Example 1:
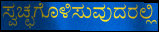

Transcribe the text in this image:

ಸ್ವಚ್ಛಗೊಳಿಸುವುದರಲ್ಲಿ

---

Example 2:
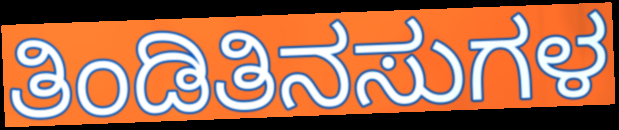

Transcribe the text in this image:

ತಿಂಡಿತಿನಸುಗಳ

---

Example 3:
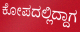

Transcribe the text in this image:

ಕೋಪದಲ್ಲಿದ್ದಾಗ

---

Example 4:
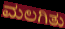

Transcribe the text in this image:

ಮಲಗಿತು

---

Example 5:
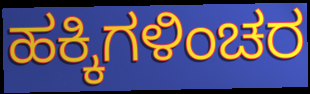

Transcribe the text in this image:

ಹಕ್ಕಿಗಳಿಂಚರ